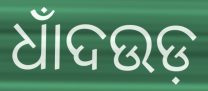
ଧାଁଦଉଡ଼